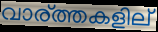
വാര്ത്തകളില്